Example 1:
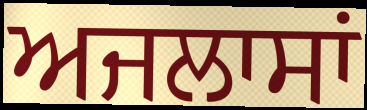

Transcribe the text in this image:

ਅਜਲਾਸਾਂ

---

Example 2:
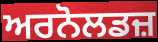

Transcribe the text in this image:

ਅਰਨੋਲਡਜ਼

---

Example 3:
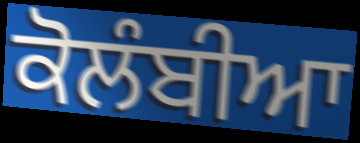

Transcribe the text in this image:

ਕੋਲੰਬੀਆ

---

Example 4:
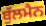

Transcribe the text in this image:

ਬੁੱਲਮੈਨ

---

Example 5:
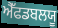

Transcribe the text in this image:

ਐੱਫਡਬਲਯੂ